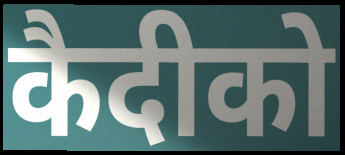
कैदीको